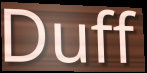
Duff